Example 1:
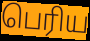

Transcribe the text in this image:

பெரிய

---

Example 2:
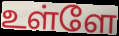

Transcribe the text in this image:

உள்ளே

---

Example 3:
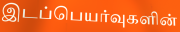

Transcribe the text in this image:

இடப்பெயர்வுகளின்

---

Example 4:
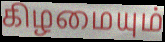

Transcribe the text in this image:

கிழமையும்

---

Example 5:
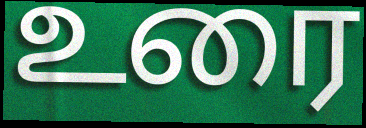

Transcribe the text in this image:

உரை